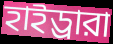
হাইড্রারা